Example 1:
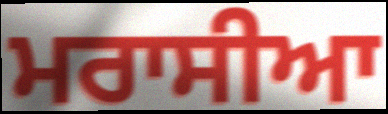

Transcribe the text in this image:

ਮਰਾਸੀਆ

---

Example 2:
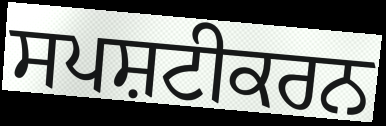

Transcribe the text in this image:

ਸਪਸ਼ਟੀਕਰਨ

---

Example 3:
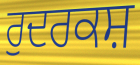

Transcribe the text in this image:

ਰੁਦਰਕਸ਼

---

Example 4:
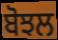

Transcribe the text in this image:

ਬੋਝਲ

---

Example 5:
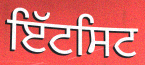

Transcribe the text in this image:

ਇੱਟਸਿਟ